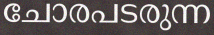
ചോരപടരുന്ന